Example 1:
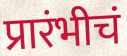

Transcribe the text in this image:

प्रारंभीचं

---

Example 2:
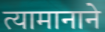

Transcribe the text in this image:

त्यामानाने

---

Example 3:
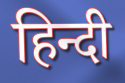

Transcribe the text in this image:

हिन्दी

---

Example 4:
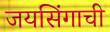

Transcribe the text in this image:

जयसिंगाची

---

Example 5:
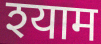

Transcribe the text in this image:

श्‍याम